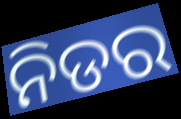
ନିଡର